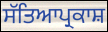
ਸੱਤਿਆਪ੍ਰਕਾਸ਼